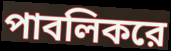
পাবলিকরে